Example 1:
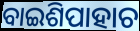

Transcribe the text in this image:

ବାଇଶିପାହାଚ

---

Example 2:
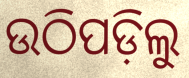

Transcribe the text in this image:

ଉଠିପଡ଼ିଲୁ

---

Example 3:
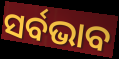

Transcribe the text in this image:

ସର୍ବଭାବ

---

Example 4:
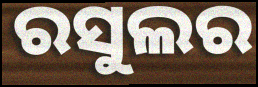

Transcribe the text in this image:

ରସୁଲର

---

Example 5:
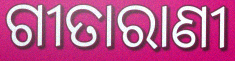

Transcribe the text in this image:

ଗୀତାରାଣୀ